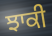
ਝਾਕੀ